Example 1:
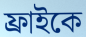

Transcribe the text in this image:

ফ্রাইকে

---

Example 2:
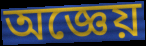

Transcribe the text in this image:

অজ্ঞেয়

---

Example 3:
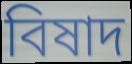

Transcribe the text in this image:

বিষাদ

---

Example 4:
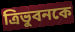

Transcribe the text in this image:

ত্রিভুবনকে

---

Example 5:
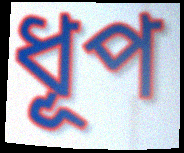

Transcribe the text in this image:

ধূপ